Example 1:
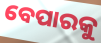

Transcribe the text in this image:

ବେପାରକୁ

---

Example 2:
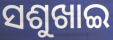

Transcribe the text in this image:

ସଶୁଖାଇ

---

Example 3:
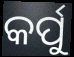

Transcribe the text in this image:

କର୍ପୁ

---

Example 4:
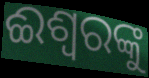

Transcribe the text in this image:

ଈଶ୍ଵରଙ୍କୁ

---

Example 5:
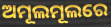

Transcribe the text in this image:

ଅମୂଲମୂଲରେ